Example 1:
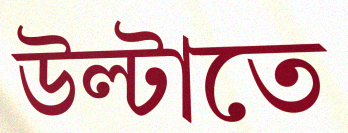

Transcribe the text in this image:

উল্টাতে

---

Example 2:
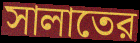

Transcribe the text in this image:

সালাতের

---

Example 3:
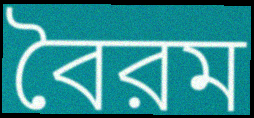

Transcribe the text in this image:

বৈরম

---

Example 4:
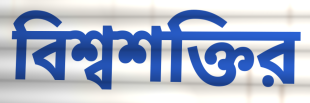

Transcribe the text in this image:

বিশ্বশক্তির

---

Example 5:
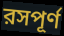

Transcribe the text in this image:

রসপূর্ণ